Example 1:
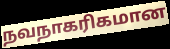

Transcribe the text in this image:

நவநாகரிகமான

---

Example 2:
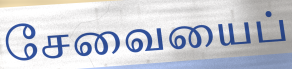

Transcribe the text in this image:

சேவையைப்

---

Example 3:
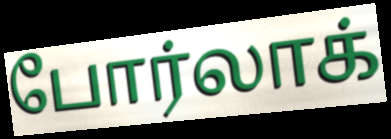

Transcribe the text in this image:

போர்லாக்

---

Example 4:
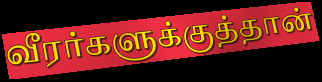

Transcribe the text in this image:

வீரர்களுக்குத்தான்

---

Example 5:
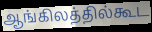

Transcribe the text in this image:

ஆங்கிலத்தில்கூட